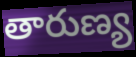
తారుణ్య